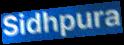
Sidhpura